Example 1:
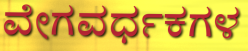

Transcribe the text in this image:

ವೇಗವರ್ಧಕಗಳ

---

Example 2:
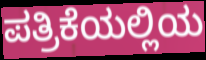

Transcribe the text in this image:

ಪತ್ರಿಕೆಯಲ್ಲಿಯ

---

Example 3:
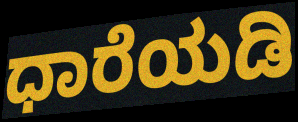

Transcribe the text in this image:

ಧಾರೆಯಡಿ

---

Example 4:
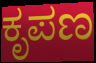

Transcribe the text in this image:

ಕೃಪಣ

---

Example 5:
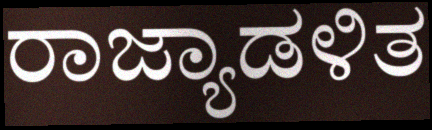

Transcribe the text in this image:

ರಾಜ್ಯಾಡಳಿತ